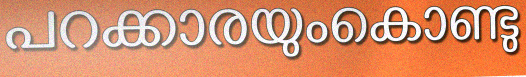
പറക്കാരയുംകൊണ്ടു